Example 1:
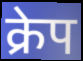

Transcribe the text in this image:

क्रेप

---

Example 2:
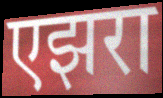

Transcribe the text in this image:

एझरा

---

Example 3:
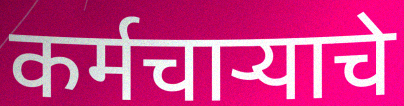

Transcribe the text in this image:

कर्मचाऱ्याचे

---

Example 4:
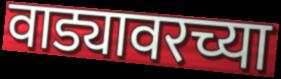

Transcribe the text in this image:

वाड्यावरच्या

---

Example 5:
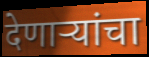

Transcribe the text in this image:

देणाऱ्यांचा